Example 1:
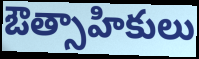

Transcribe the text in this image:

ఔత్సాహికులు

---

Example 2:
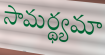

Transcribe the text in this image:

సామర్థ్యమా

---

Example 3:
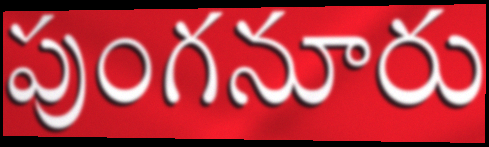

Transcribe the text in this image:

పుంగనూరు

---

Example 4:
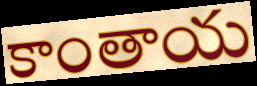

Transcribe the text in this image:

కాంతాయ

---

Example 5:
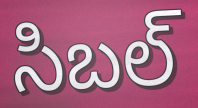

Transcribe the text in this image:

సిబల్